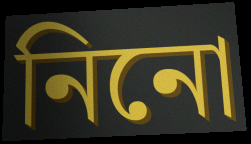
নিনো